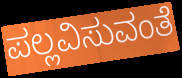
ಪಲ್ಲವಿಸುವಂತೆ